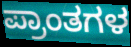
ಪ್ರಾಂತಗಳ